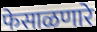
फेसाळणारे